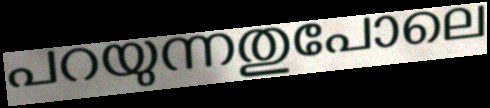
പറയുന്നതുപോലെ